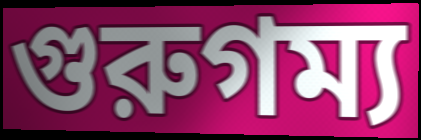
গুরুগম্য